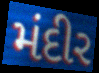
મંદીર